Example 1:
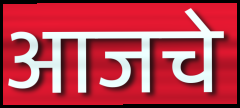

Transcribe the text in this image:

आजचे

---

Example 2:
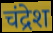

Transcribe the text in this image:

चंद्रेश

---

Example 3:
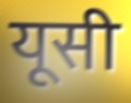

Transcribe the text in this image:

यूसी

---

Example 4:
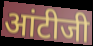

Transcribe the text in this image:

आंटीजी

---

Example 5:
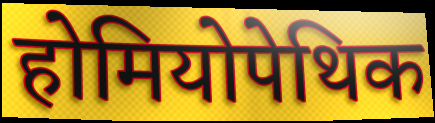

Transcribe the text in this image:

होमियोपेथिक